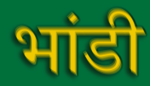
भांडी